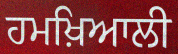
ਹਮਖ਼ਿਆਲੀ